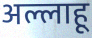
अल्लाहू